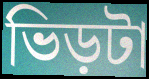
ভিড়টা